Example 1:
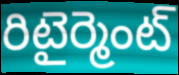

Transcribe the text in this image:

రిటైర్మెంట్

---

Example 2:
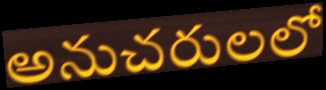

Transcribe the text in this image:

అనుచరులలో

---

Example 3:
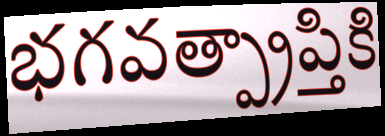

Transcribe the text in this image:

భగవత్ప్రాప్తికి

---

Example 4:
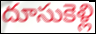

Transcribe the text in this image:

దూసుకెళ్లి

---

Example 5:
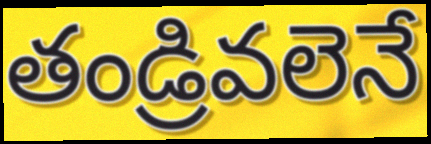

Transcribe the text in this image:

తండ్రివలెనే